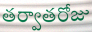
తర్వాతరోజు